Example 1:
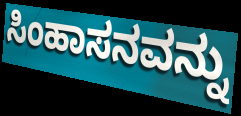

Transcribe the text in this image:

ಸಿಂಹಾಸನವನ್ನು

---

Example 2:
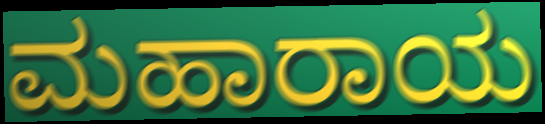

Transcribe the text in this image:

ಮಹಾರಾಯ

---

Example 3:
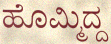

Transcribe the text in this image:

ಹೊಮ್ಮಿದ್ದ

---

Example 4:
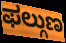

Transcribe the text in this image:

ಫಲ್ಗುಣ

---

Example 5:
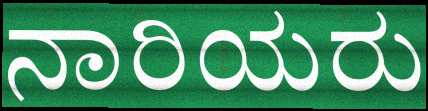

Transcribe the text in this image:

ನಾರಿಯರು